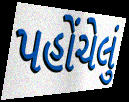
પહોંચેલું